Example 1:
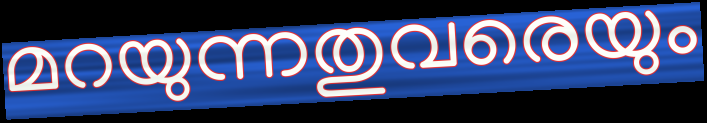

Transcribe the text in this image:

മറയുന്നതുവരെയും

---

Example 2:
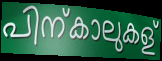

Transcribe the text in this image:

പിന്കാലുകള്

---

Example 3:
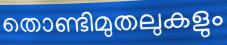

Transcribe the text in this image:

തൊണ്ടിമുതലുകളും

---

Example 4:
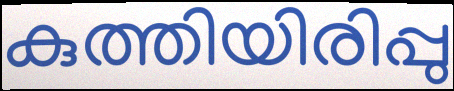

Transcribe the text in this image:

കുത്തിയിരിപ്പു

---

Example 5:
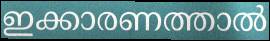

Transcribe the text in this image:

ഇക്കാരണത്താൽ